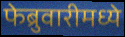
फेब्रुवारीमध्ये